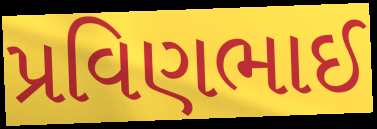
પ્રવિણભાઈ